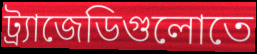
ট্র্যাজেডিগুলোতে